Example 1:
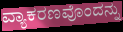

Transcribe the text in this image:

ವ್ಯಾಕರಣವೊಂದನ್ನು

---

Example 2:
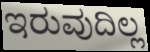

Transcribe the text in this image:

ಇರುವುದಿಲ್ಲ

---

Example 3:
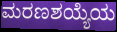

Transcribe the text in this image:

ಮರಣಶಯ್ಯೆಯ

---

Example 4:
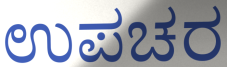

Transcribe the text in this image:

ಉಪಚರ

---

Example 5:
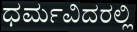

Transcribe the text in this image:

ಧರ್ಮವಿದರಲ್ಲಿ